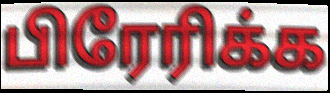
பிரேரிக்க